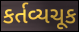
કર્તવ્યચૂક